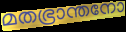
മതഭ്രാന്തനോ